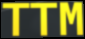
TTM